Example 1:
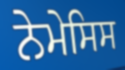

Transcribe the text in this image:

ਨੇਮੇਸਿਸ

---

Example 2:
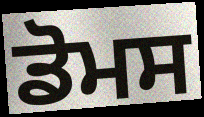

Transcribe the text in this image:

ਡੋਮਸ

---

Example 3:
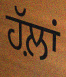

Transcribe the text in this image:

ਹੱਲ਼ਾਂ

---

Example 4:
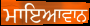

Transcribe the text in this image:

ਮਾਇਆਵਾਨ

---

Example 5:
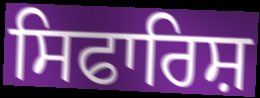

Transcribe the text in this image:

ਸਿਫਾਰਿਸ਼